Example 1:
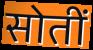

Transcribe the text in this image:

सोतीं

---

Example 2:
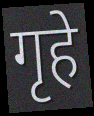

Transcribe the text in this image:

गृहे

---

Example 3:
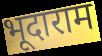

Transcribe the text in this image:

भूदाराम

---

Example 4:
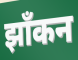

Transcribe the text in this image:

झाँकन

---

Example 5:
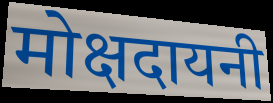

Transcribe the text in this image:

मोक्षदायनी